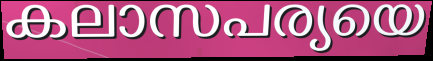
കലാസപര്യയെ